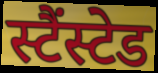
स्टैंस्टेड